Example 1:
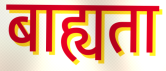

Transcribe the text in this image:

बाह्यता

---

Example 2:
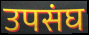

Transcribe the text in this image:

उपसंघ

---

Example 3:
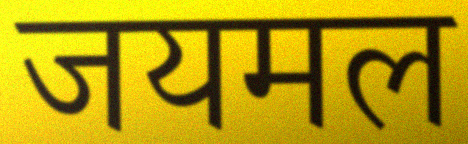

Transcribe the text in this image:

जयमल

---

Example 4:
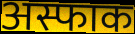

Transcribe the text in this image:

अस्फाक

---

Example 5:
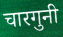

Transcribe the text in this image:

चारगुनी